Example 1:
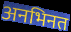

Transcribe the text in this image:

अनभिनत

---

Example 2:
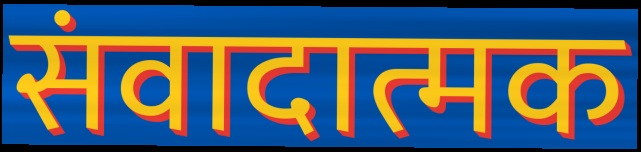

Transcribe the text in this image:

संवादात्मक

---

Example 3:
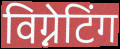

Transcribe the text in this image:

विग्नेटिंग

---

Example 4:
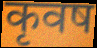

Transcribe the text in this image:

कृवष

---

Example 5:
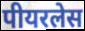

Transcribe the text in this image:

पीयरलेस